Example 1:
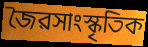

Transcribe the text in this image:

জৈৱসাংস্কৃতিক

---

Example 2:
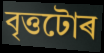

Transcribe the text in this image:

বৃত্তটোৰ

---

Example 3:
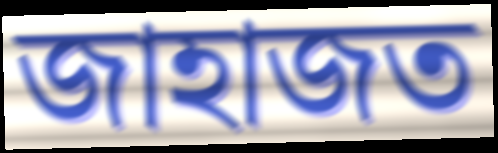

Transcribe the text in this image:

জাহাজত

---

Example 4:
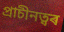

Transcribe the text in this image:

প্ৰাচীনত্বৰ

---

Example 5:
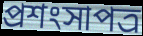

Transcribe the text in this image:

প্ৰশংসাপত্ৰ